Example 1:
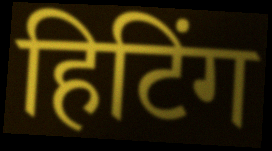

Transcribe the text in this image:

हिटिंग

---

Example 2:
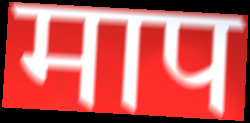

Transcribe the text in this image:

माप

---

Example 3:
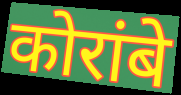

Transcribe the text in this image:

कोरांबे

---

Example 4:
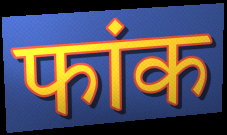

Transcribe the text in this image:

फांक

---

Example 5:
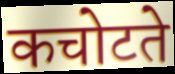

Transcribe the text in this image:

कचोटते